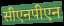
सीएनपीएन